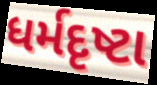
ધર્મદૃષ્ટા